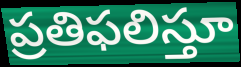
ప్రతిఫలిస్తూ